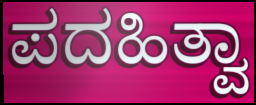
ಪದಹಿತ್ವಾ